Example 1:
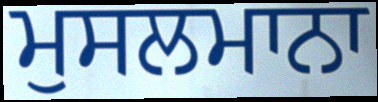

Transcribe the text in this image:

ਮੁਸਲਮਾਨਾ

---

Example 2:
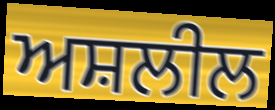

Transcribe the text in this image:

ਅਸ਼ਲੀਲ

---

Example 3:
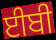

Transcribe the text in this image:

ਈਬੀ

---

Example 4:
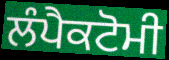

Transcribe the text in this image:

ਲੰਪੈਕਟੋਮੀ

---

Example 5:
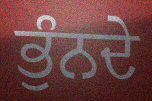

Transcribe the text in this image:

ਭੁੰਨਦੇ